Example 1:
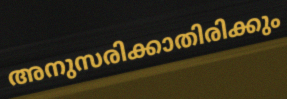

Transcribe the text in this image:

അനുസരിക്കാതിരിക്കും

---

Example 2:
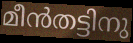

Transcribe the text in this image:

മീൻതട്ടിനു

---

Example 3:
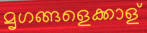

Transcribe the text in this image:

മൃഗങ്ങളെക്കാള്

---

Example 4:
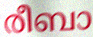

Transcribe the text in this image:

രീബാ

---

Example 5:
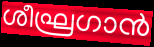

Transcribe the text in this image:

ശീഘ്രഗാൻ